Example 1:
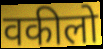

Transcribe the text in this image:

वकीलो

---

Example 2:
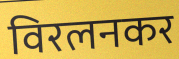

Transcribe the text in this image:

विरलनकर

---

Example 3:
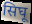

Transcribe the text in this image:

सिघू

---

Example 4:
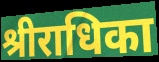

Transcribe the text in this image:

श्रीराधिका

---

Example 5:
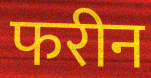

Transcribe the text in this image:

फरीन